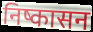
निष्कासन